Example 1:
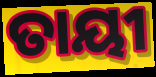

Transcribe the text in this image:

ତାୟୀ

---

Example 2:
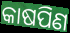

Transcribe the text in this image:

କାଷପିଣ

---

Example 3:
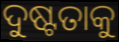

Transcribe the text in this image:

ଦୁଷ୍ଟତାକୁ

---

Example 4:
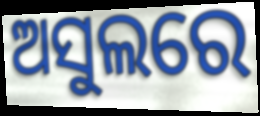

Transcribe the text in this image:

ଅସୁଲରେ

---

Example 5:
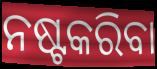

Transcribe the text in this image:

ନଷ୍ଟକରିବା